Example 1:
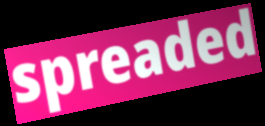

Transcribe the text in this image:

spreaded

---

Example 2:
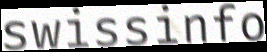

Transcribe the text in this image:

swissinfo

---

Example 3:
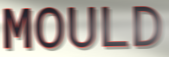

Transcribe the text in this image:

MOULD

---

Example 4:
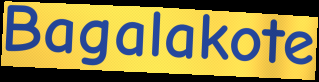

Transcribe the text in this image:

Bagalakote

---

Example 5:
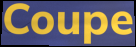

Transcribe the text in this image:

Coupe